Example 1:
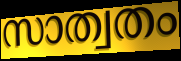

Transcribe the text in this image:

സാത്വതം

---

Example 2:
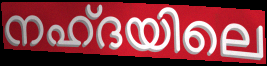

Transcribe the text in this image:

നഹ്ദയിലെ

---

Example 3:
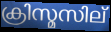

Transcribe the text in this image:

ക്രിസ്മസില്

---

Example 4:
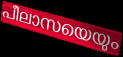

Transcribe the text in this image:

പീലാസയെയും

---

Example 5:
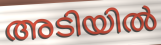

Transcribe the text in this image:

അടിയിൽ